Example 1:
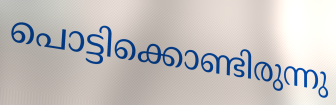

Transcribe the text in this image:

പൊട്ടിക്കൊണ്ടിരുന്നു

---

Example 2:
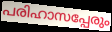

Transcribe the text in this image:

പരിഹാസപ്പേരും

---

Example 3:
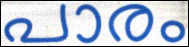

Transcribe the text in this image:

പാരം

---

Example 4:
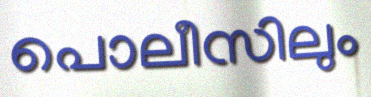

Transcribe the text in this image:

പൊലീസിലും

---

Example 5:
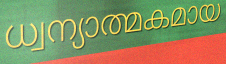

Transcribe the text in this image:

ധ്വന്യാത്മകമായ